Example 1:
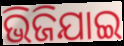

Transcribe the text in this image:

ଭିଜିଯାଇ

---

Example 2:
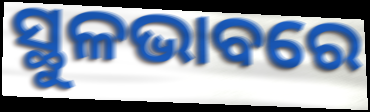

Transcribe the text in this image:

ସ୍ଥୁଳଭାବରେ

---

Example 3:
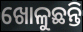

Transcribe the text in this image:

ଖୋଳୁଛନ୍ତି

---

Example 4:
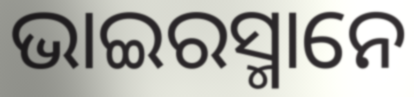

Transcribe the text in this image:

ଭାଇରସ୍ମାନେ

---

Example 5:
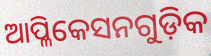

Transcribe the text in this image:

ଆପ୍ଳିକେସନଗୁଡ଼ିକ